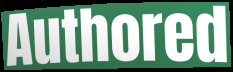
Authored